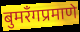
बुमरँगप्रमाणे